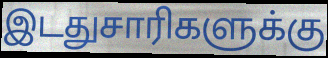
இடதுசாரிகளுக்கு